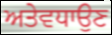
ਅਤੇਵਧਾਉਣ